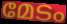
മേടം